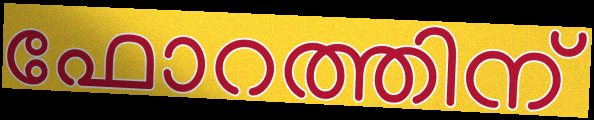
ഫോറത്തിന്